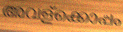
അവള്ക്കൊപ്പം